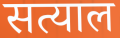
सत्याल